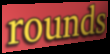
rounds